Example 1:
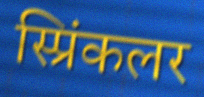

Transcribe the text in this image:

स्प्रिंकलर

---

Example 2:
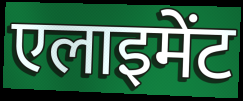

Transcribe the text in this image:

एलाइमेंट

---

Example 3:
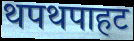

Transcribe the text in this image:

थपथपाहट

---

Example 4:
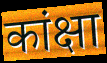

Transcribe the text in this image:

कांक्षा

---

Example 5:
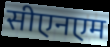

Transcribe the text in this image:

सीएनएम